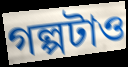
গল্পটাও